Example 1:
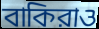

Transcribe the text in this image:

বাকিরাও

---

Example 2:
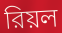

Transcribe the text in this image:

রিয়ল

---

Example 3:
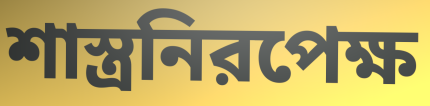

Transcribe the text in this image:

শাস্ত্রনিরপেক্ষ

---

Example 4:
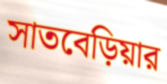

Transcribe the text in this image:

সাতবেড়িয়ার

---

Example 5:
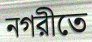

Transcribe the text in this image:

নগরীতে